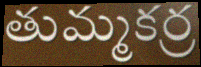
తుమ్మకర్ర